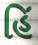
હિં